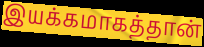
இயக்கமாகத்தான்